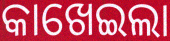
କାଖେଇଲା